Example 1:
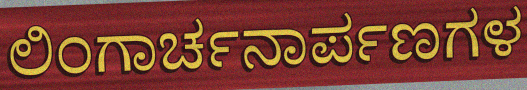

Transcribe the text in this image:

ಲಿಂಗಾರ್ಚನಾರ್ಪಣಗಳ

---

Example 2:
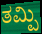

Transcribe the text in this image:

ತಮ್ಪಿ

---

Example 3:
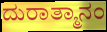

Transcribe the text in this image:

ದುರಾತ್ಮಾನಂ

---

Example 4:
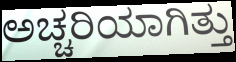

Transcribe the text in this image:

ಅಚ್ಚರಿಯಾಗಿತ್ತು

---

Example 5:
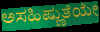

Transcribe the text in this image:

ಅಸಹಿಷ್ಣುತೆಯೇ